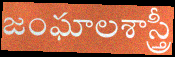
జంఘాలశాస్త్రీ